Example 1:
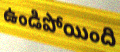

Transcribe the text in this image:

ఉండిపోయింది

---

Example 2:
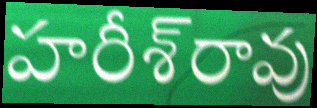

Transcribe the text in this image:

హరీశ్‌రావు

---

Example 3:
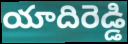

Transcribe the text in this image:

యాదిరెడ్డి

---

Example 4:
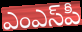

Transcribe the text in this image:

ఎంఎస్‌పీ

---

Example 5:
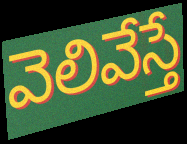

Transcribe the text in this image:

వెలివేస్తే